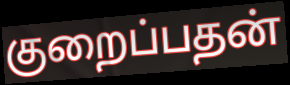
குறைப்பதன்